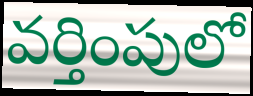
వర్తింపులో